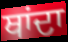
ਥਾਂਦਾ